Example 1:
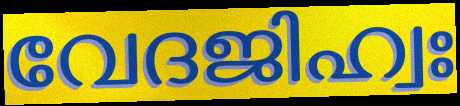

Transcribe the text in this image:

വേദജിഹ്വഃ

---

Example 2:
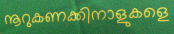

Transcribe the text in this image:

നൂറുകണക്കിനാളുകളെ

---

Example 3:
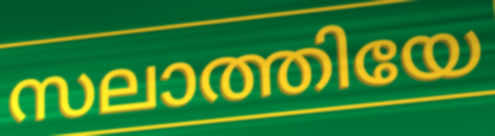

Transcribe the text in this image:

സലാത്തിയേ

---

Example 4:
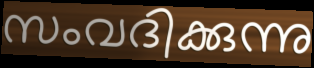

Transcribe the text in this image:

സംവദിക്കുന്നു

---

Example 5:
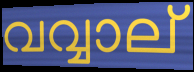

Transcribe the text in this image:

വവ്വാല്